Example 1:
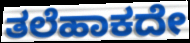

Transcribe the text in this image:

ತಲೆಹಾಕದೇ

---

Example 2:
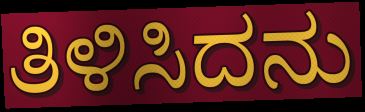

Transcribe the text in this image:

ತಿಳಿಸಿದನು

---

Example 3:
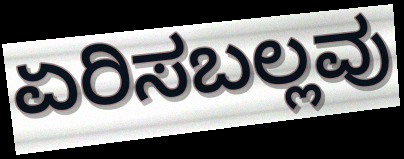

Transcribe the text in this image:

ಏರಿಸಬಲ್ಲವು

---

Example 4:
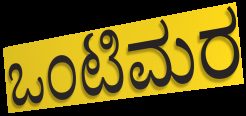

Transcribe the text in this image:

ಒಂಟಿಮರ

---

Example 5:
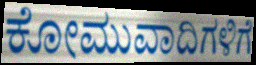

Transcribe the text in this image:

ಕೋಮುವಾದಿಗಳಿಗೆ